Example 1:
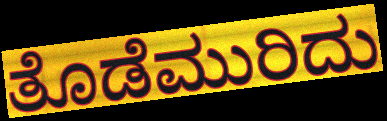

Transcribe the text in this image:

ತೊಡೆಮುರಿದು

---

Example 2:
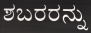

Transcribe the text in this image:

ಶಬರರನ್ನು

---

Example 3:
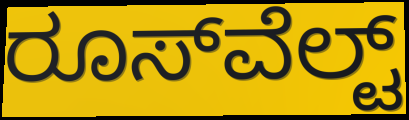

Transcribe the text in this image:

ರೂಸ್‌ವೆಲ್ಟ್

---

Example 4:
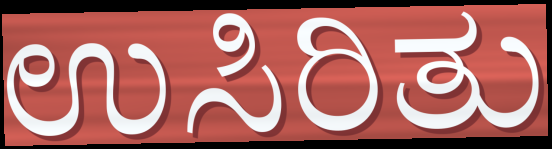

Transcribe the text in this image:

ಉಸಿರಿತು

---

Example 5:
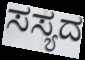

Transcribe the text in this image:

ಸಸ್ಯದ